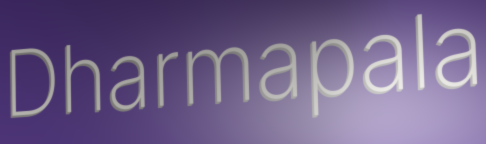
Dharmapala